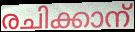
രചിക്കാന്